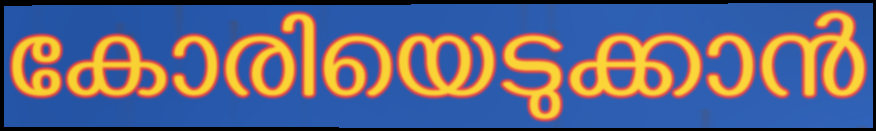
കോരിയെടുക്കാൻ